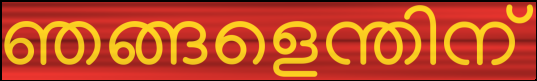
ഞങ്ങളെന്തിന്